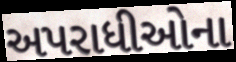
અપરાધીઓના